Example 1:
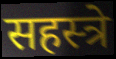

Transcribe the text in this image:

सहस्त्रे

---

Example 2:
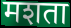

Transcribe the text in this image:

मशता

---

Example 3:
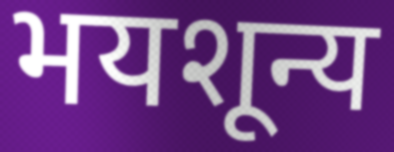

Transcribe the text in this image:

भयशून्य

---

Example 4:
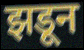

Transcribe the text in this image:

झडून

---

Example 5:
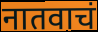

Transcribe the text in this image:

नातवाचं